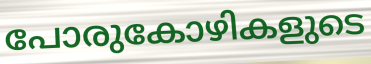
പോരുകോഴികളുടെ